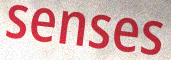
senses